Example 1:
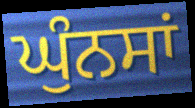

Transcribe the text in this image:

ਘੁੰਨਸਾਂ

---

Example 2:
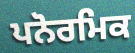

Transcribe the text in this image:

ਪਨੋਰਮਿਕ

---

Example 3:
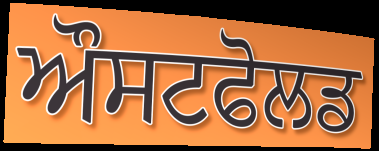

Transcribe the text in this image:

ਔਸਟਫੋਲਡ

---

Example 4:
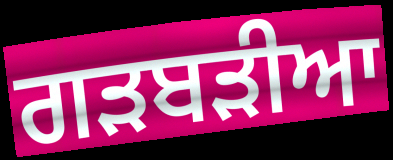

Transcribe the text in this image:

ਗੜਬੜੀਆ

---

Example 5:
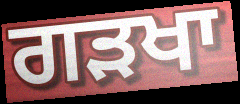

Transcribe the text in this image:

ਗੜਖਾ